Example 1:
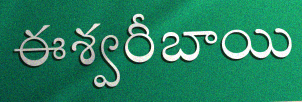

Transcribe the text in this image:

ఈశ్వరీబాయి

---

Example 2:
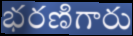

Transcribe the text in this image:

భరణిగారు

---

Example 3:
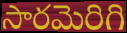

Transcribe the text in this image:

సారమెరిగి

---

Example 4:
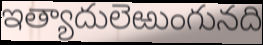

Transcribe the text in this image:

ఇత్యాదులెఱుంగునది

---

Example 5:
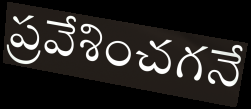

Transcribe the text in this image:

ప్రవేశించగనే